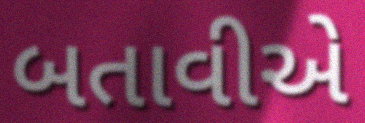
બતાવીએ